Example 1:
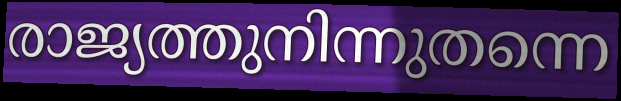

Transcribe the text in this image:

രാജ്യത്തുനിന്നുതന്നെ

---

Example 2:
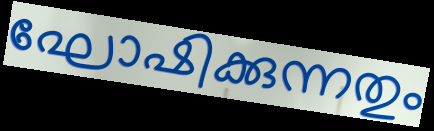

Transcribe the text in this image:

ഘോഷിക്കുന്നതും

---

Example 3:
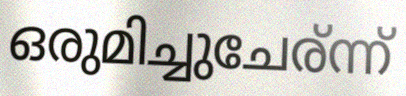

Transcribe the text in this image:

ഒരുമിച്ചുചേര്ന്ന്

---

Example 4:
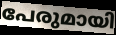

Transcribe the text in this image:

പേരുമായി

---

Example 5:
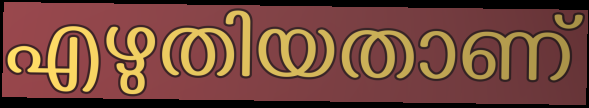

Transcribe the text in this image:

എഴുതിയതാണ്